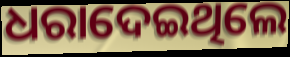
ଧରାଦେଇଥିଲେ